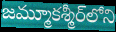
జమ్మూకశ్మీర్‌లోని